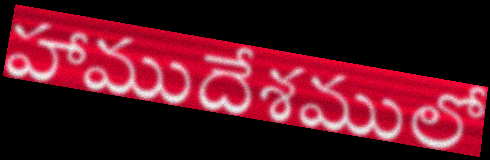
హాముదేశములో